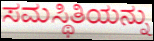
ಸಮಸ್ಥಿತಿಯನ್ನು